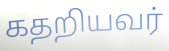
கதறியவர்